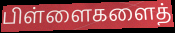
பிள்ளைகளைத்